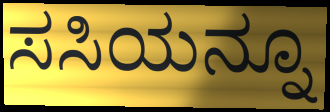
ಸಸಿಯನ್ನೂ